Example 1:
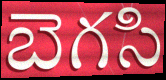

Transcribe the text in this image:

బెగసి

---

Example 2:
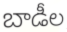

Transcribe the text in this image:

బాడీల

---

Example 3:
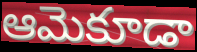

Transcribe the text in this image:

ఆమెకూడా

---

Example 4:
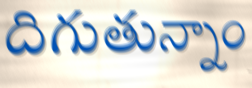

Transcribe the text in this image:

దిగుతున్నాం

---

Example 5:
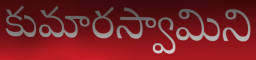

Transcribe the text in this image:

కుమారస్వామిని